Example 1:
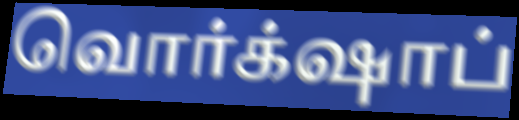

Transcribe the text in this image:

வொர்க்‌ஷாப்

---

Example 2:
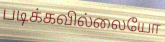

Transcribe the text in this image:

படிக்கவில்லையோ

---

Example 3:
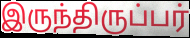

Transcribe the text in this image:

இருந்திருப்பர்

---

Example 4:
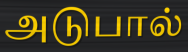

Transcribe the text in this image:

அடுபால்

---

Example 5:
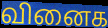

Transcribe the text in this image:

வினைக